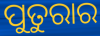
ପୁତୁରାର